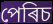
পেৰিচ